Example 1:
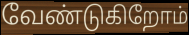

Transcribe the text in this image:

வேண்டுகிறோம்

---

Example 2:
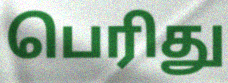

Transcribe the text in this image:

பெரிது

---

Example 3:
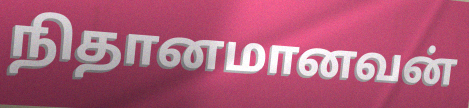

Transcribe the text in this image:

நிதானமானவன்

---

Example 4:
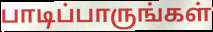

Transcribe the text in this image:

பாடிப்பாருங்கள்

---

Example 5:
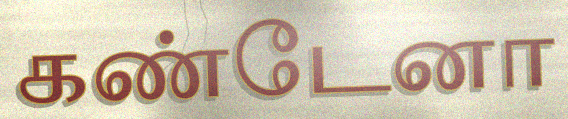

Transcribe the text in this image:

கண்டேனா